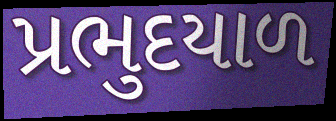
પ્રભુદયાળ